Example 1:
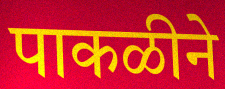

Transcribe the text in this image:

पाकळीने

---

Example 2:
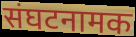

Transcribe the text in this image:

संघटनामक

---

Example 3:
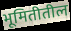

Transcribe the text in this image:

भूमितीतील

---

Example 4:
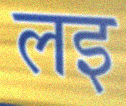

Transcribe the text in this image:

लइ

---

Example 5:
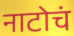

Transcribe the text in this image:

नाटोचं